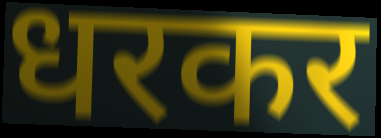
धरकर